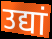
उद्यां